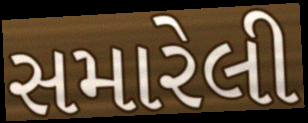
સમારેલી